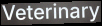
Veterinary